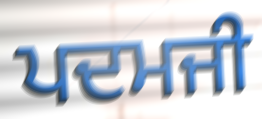
ਪਦਮਜੀ